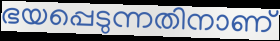
ഭയപ്പെടുന്നതിനാണ്